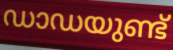
ഡാഡയുണ്ട്